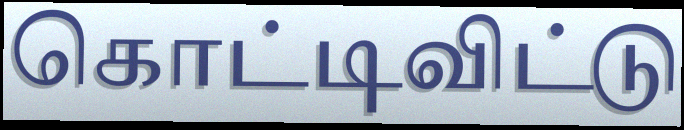
கொட்டிவிட்டு